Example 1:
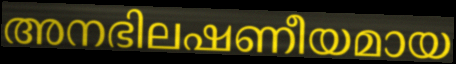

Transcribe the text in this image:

അനഭിലഷണീയമായ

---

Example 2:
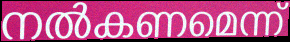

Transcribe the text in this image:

നൽകണമെന്ന്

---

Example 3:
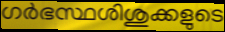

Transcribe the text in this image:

ഗർഭസ്ഥശിശുക്കളുടെ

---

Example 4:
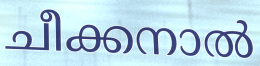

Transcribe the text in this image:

ചീക്കനാൽ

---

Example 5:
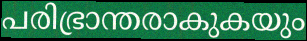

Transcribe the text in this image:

പരിഭ്രാന്തരാകുകയും